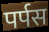
पर्पस